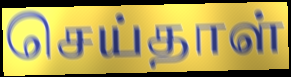
செய்தாள்